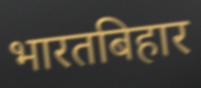
भारतबिहार